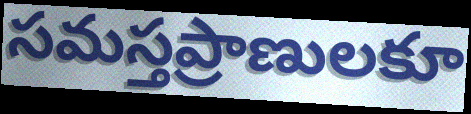
సమస్తప్రాణులకూ